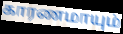
காரணமாயும்